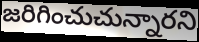
జరిగించుచున్నారని